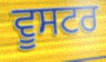
ਵੂਸਟਰ